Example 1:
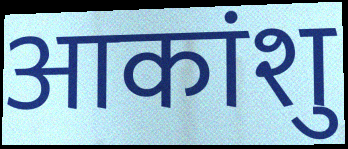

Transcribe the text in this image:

आकांशु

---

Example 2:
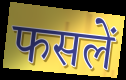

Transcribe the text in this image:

फसलें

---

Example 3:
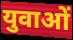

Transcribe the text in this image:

युवाओं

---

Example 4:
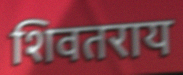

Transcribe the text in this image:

शिवतराय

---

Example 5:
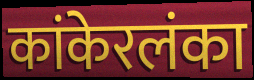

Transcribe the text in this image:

कांकेरलंका